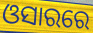
ଓସାରରେ